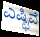
ಎಷ್ಟಿವೆ